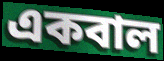
একবাল